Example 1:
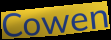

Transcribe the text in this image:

Cowen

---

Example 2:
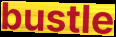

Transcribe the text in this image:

bustle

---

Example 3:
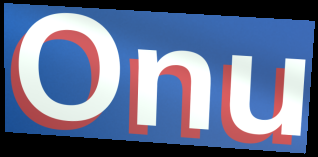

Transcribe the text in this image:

Onu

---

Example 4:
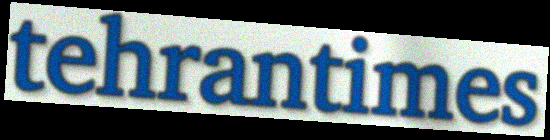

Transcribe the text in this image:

tehrantimes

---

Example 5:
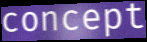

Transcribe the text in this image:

concept